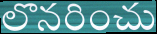
లొనరించు